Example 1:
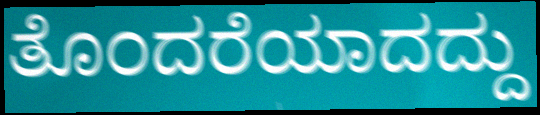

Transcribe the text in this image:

ತೊಂದರೆಯಾದದ್ದು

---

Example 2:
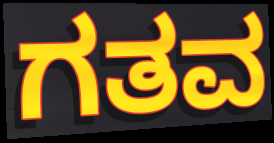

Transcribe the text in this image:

ಗತವ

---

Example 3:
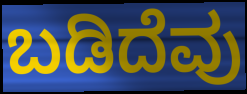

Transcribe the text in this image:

ಬಡಿದೆವು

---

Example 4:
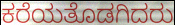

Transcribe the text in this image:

ಕರೆಯತೊಡಗಿದರು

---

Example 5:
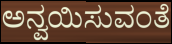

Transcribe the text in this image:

ಅನ್ವಯಿಸುವಂತೆ